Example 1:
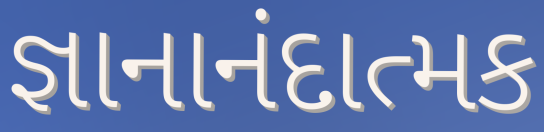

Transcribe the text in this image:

જ્ઞાનાનંદાત્મક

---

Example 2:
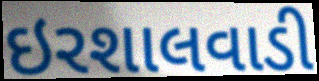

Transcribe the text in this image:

ઇરશાલવાડી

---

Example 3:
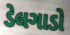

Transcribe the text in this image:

ડેલગાડો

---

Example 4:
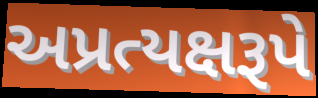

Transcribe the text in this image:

અપ્રત્યક્ષરૂપે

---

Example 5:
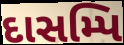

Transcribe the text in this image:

દાસમ્પિ